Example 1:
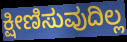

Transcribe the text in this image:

ಕ್ಷೀಣಿಸುವುದಿಲ್ಲ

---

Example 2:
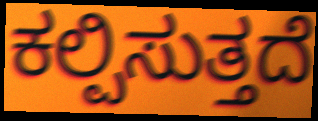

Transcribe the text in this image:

ಕಲ್ಪಿಸುತ್ತದೆ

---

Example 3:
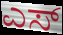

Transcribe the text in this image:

ಎಸ್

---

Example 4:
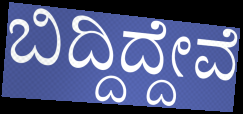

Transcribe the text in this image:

ಬಿದ್ದಿದ್ದೇವೆ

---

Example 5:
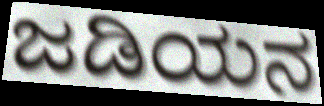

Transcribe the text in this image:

ಜಡಿಯನ